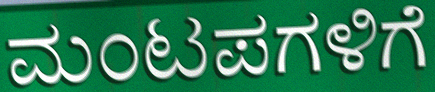
ಮಂಟಪಗಳಿಗೆ